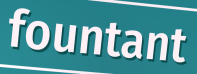
fountant